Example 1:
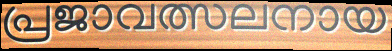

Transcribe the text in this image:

പ്രജാവത്സലനായ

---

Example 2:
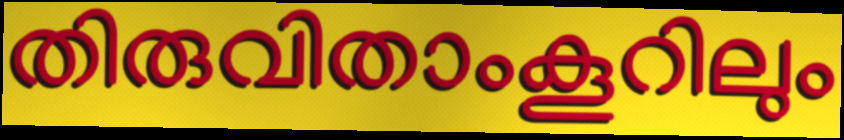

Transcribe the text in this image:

തിരുവിതാംകൂറിലും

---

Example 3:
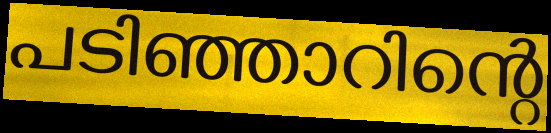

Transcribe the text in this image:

പടിഞ്ഞാറിന്റെ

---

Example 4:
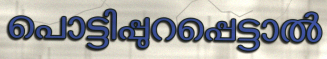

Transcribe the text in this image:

പൊട്ടിപ്പുറപ്പെട്ടാൽ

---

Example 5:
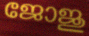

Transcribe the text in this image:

ജോജു